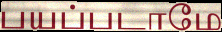
பயப்படாமே